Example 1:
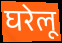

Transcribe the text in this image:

घरेलू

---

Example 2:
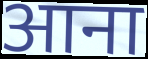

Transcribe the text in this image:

आना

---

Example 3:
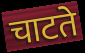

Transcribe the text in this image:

चाटते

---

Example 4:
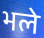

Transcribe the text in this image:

भले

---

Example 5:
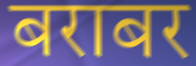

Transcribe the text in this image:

बराबर